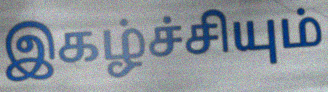
இகழ்ச்சியும்